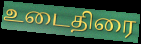
உடைதிரை